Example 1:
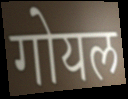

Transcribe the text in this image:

गोयल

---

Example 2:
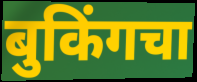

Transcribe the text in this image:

बुकिंगचा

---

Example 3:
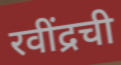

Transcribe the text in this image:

रवींद्रची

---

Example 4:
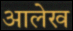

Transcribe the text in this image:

आलेख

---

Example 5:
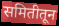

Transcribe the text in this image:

समितीतून